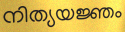
നിത്യയജ്ഞം